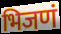
भिजणं